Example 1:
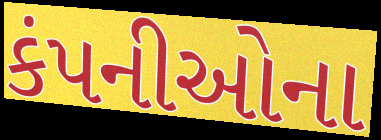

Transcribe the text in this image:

કંપનીઓના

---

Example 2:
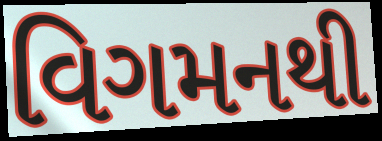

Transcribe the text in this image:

વિગમનથી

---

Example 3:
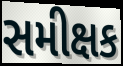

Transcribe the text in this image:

સમીક્ષક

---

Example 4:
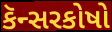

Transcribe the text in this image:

કૅન્સરકોષો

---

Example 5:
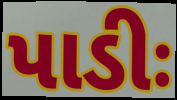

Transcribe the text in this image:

પાડીઃ